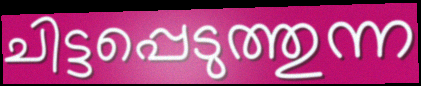
ചിട്ടപ്പെടുത്തുന്ന